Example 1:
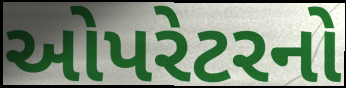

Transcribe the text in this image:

ઓપરેટરનો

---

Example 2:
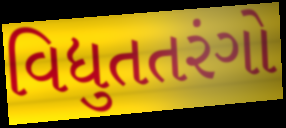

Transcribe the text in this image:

વિદ્યુતતરંગો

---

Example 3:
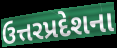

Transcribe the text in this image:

ઉત્તરપ્રદેશના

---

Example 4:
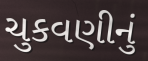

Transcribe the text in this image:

ચુકવણીનું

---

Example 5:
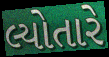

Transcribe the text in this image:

લ્યોતારે